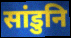
सांडुनि